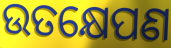
ଉତକ୍ଷେପଣ